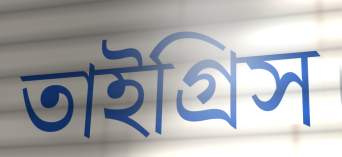
তাইগ্রিস